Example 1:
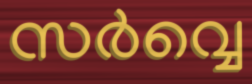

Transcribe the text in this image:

സർവ്വെ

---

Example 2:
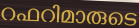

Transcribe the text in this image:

റഫറിമാരുടെ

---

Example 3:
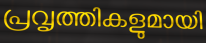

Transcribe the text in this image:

പ്രവൃത്തികളുമായി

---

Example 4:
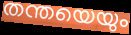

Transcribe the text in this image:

തന്തയെയും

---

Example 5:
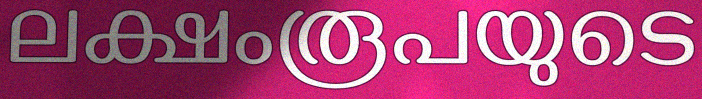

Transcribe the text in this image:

ലക്ഷംരൂപയുടെ